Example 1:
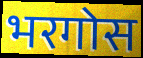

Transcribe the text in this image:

भरगोस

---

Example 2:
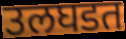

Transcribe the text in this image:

उलघडत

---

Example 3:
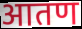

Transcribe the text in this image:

आतण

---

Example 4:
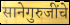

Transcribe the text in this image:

सानेगुरुजींचे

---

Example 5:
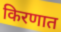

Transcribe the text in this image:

किरणात